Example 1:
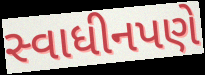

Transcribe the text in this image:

સ્વાધીનપણે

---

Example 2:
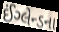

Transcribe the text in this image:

ઈંગ્લેન્ડના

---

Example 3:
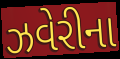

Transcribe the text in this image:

ઝવેરીના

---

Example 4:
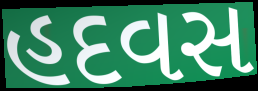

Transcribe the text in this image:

હદવસ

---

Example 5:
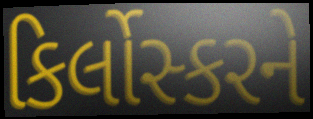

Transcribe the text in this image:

કિર્લોસ્કરને